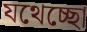
যথেচ্ছো